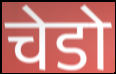
चेडो